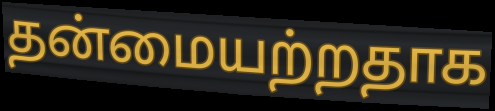
தன்மையற்றதாக